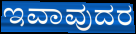
ಇವಾವುದರ